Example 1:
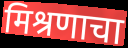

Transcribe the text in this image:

मिश्रणाचा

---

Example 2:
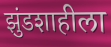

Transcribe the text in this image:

झुंडशाहीला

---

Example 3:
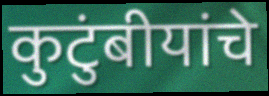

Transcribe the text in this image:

कुटुंबीयांचे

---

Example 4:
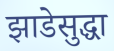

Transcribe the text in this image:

झाडेसुद्धा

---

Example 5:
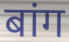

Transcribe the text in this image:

बांग